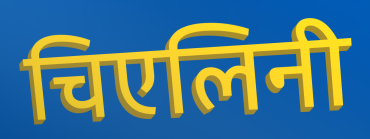
चिएलिनी